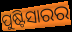
ପୁଷ୍ଟିସାରର